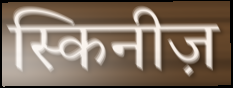
स्किनीज़